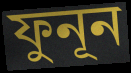
ফুনূন